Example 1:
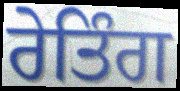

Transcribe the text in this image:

ਰੇਤਿੰਗ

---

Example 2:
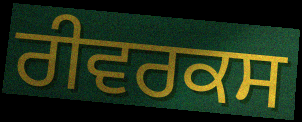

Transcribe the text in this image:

ਰੀਵਰਕਸ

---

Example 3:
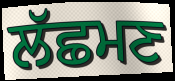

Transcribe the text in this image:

ਲੱਛਮਣ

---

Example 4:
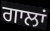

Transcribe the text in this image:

ਗਾਲਾਂ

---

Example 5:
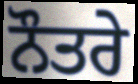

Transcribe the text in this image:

ਨੌਤਰੇ